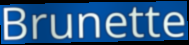
Brunette